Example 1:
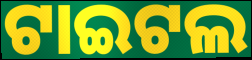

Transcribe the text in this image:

ଟାଇଟଲ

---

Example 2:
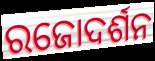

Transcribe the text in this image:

ରଜୋଦର୍ଶନ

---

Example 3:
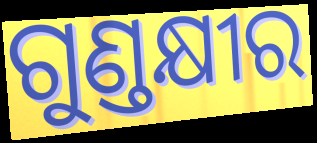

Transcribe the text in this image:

ଗୁଣ୍ଡକ୍ଷୀର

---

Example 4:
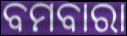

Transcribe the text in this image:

ବମବାରା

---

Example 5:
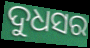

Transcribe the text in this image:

ଦୁଧସର